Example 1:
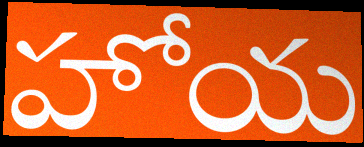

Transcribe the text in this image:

హోయ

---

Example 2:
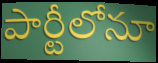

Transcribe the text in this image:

పార్టీలోనూ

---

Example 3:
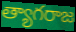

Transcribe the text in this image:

త్యాగరాజ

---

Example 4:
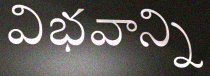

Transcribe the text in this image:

విభవాన్ని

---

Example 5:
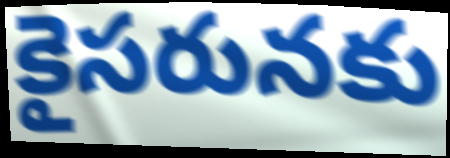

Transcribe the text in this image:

కైసరునకు